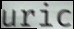
uric